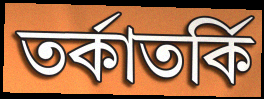
তৰ্কাতৰ্কি